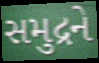
સમુદ્રને